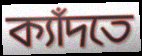
ক্যাঁদতে